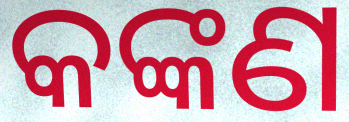
କଙ୍କଣ